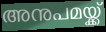
അനുപമയ്ക്ക്